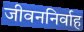
जीवननिर्वाह